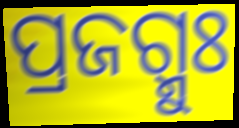
ପ୍ରଜଗ୍ମୁଃ